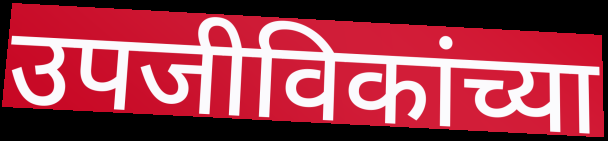
उपजीविकांच्या